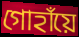
গোহাঁয়ে